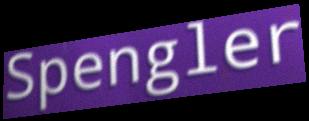
Spengler